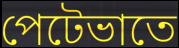
পেটেভাতে